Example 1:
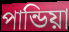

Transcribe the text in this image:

পান্ডিয়া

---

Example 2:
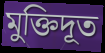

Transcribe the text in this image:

মুক্তিদূত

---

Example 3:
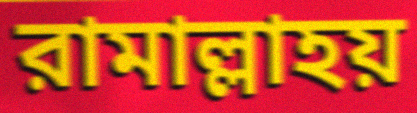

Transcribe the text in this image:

রামাল্লাহয়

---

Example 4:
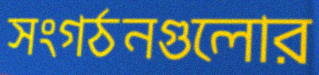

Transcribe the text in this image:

সংগঠনগুলোর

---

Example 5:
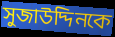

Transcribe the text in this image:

সুজাউদ্দিনকে